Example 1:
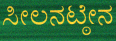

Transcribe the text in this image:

ಸೀಲನಟ್ಠೇನ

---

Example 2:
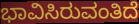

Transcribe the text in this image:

ಭಾವಿಸಿರುವಂತಿದೆ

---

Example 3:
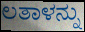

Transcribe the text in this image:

ಲತಾಳನ್ನು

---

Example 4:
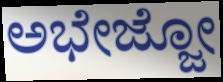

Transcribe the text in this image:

ಅಭೇಜ್ಜೋ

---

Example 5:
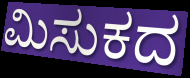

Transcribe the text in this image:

ಮಿಸುಕದ